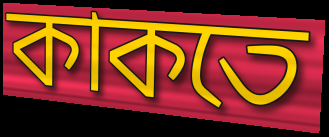
কাকতে